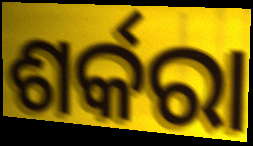
ଶର୍କରା